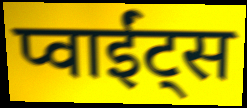
प्वाईंट्स